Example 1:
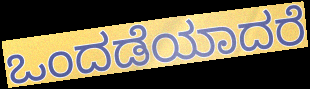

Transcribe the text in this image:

ಒಂದಡೆಯಾದರೆ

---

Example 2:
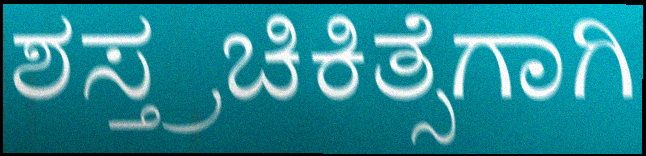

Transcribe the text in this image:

ಶಸ್ತ್ರಚಿಕಿತ್ಸೆಗಾಗಿ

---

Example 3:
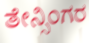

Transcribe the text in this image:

ತೇನ್ಸಿಂಗರ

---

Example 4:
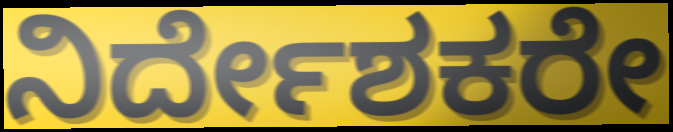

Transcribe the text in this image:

ನಿರ್ದೇಶಕರೇ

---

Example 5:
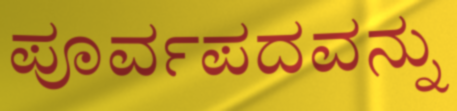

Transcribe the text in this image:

ಪೂರ್ವಪದವನ್ನು